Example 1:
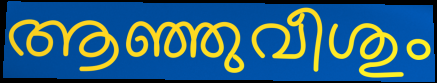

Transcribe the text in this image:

ആഞ്ഞുവീശും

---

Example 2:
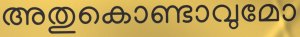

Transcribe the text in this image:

അതുകൊണ്ടാവുമോ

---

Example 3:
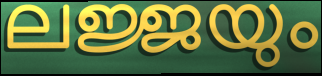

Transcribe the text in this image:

ലജ്ജയും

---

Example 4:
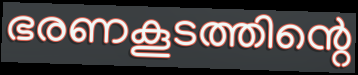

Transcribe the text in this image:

ഭരണകൂടത്തിന്റെ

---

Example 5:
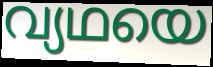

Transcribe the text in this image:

വ്യഥയെ